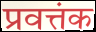
प्रवत्तंक